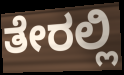
ತೇರಲ್ಲಿ